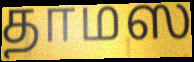
தாமஸ